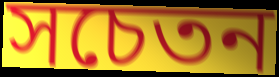
সচেতন